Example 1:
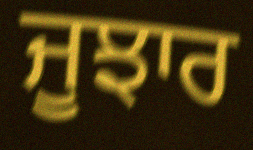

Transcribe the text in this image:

ਜੂਝਾਰ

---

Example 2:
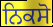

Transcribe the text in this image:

ਨਿਕਸੋ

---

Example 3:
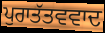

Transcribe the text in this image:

ਪੁਰਾਤੱਤਵਵਾਦ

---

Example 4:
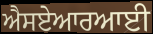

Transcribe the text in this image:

ਐਸਏਆਰਆਈ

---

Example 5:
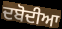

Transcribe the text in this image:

ਦਬੋਦੀਆ